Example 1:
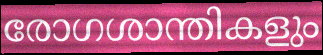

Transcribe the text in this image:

രോഗശാന്തികളും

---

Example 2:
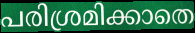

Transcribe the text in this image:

പരിശ്രമിക്കാതെ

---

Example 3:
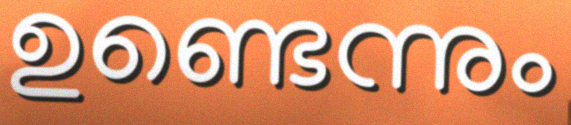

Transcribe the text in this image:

ഉണ്ടെന്നും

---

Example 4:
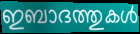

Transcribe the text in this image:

ഇബാദത്തുകൾ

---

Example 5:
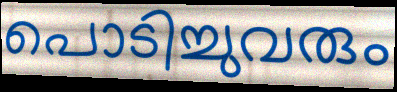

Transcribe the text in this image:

പൊടിച്ചുവരും